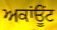
ਅਕਾਂਊਂਟ